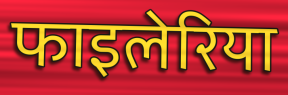
फाइलेरिया